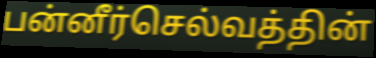
பன்னீர்செல்வத்தின்